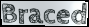
Braced